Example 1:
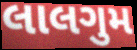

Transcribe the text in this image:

લાલગુમ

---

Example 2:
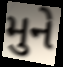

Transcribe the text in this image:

મુને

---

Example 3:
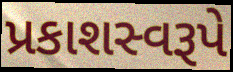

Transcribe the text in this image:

પ્રકાશસ્વરૂપે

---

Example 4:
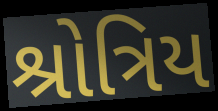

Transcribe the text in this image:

શ્રોત્રિય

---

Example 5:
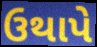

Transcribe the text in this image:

ઉથાપે